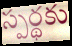
స్పర్థకు